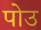
पोउ